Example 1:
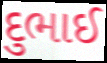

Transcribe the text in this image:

દુભાઈ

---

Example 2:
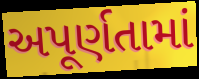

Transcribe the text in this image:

અપૂર્ણતામાં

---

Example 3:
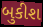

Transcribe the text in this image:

બુકીશ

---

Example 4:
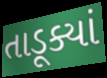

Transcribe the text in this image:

તાડૂક્યાં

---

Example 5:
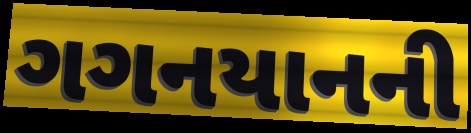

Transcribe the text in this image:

ગગનયાનની